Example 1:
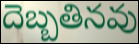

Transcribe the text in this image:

దెబ్బతినవు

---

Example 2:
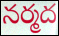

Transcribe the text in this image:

నర్మద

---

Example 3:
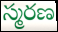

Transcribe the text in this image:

స్మరణ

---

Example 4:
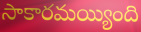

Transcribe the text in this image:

సాకారమయ్యింది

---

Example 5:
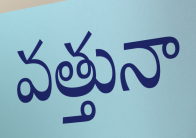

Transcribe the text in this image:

వత్తునా